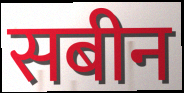
सबीन